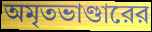
অমৃতভাণ্ডারের